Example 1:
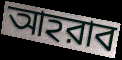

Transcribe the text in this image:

আহরাব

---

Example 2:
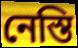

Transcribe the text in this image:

নেস্তি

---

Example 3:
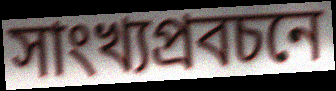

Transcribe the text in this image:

সাংখ্যপ্রবচনে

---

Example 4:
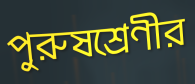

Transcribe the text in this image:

পুরুষশ্রেণীর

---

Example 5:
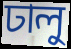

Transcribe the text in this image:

ঢালু